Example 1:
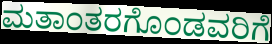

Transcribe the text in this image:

ಮತಾಂತರಗೊಂಡವರಿಗೆ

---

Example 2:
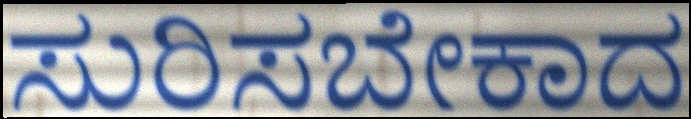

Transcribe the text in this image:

ಸುರಿಸಬೇಕಾದ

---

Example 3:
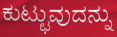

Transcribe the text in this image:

ಕುಟ್ಟುವುದನ್ನು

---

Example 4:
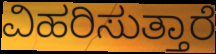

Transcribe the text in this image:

ವಿಹರಿಸುತ್ತಾರೆ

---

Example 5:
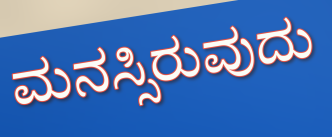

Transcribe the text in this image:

ಮನಸ್ಸಿರುವುದು